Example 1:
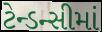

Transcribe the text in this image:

ટેન્ડન્સીમાં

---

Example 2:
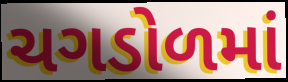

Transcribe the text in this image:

ચગડોળમાં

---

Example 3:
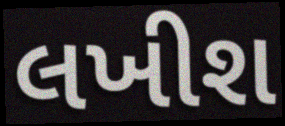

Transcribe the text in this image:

લખીશ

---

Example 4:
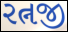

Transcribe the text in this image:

રત્નજી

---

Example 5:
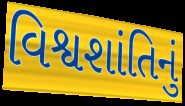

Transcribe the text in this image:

વિશ્વશાંતિનું